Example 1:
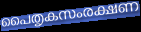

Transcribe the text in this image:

പൈതൃകസംരക്ഷണ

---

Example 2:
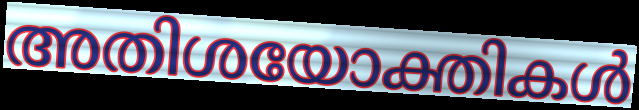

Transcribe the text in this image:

അതിശയോക്തികൾ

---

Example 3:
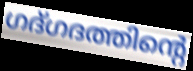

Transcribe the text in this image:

ഗദ്ഗദത്തിന്റെ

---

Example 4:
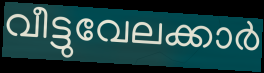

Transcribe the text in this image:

വീട്ടുവേലക്കാർ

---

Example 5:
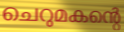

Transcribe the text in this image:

ചെറുമകന്റെ